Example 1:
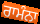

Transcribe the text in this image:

ਰਾਮੰਨਾ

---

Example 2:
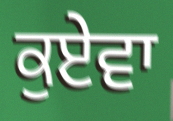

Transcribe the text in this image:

ਕੁਏਵਾ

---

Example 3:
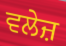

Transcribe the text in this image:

ਵਲੇਜ਼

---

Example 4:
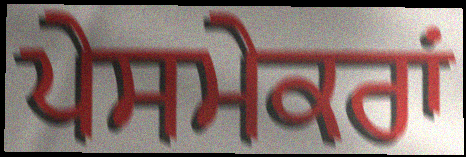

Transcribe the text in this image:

ਪੇਸਮੇਕਰਾਂ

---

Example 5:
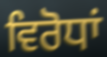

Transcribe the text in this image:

ਵਿਰੋਧਾਂ